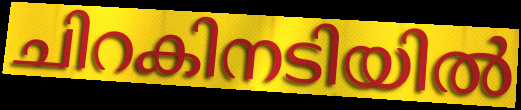
ചിറകിനടിയിൽ